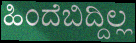
ಹಿಂದೆಬಿದ್ದಿಲ್ಲ